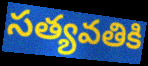
సత్యవతికి